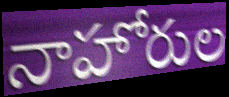
నాహోరుల